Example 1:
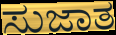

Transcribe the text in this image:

ಸುಜಾತ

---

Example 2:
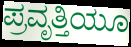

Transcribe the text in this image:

ಪ್ರವೃತ್ತಿಯೂ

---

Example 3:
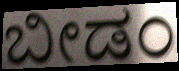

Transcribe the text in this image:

ಬೀಡಂ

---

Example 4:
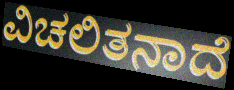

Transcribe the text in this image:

ವಿಚಲಿತನಾದೆ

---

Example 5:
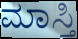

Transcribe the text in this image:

ಮಾಸ್ತಿ